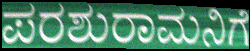
ಪರಶುರಾಮನಿಗೆ